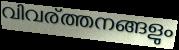
വിവര്ത്തനങ്ങളും